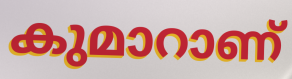
കുമാറാണ്